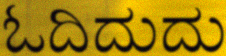
ಓದಿದುದು